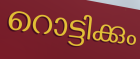
റൊട്ടിക്കും